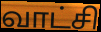
வாட்சி